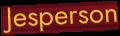
Jesperson